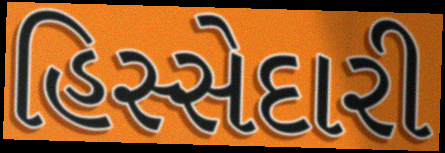
હિસ્સેદારી